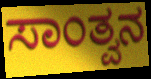
ಸಾಂತ್ವನ